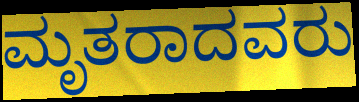
ಮೃತರಾದವರು